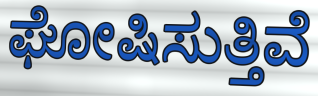
ಘೋಷಿಸುತ್ತಿವೆ